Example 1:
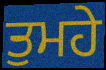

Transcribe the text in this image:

ਤੁਮਹੇ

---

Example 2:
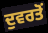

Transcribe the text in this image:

ਦੁਵਰਤੋਂ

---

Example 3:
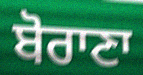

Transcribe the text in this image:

ਬੋਰਾਣਾ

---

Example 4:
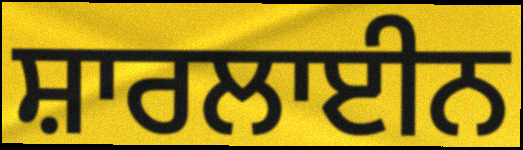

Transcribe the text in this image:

ਸ਼ਾਰਲਾਈਨ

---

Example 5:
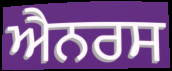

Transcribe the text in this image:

ਐਨਰਸ